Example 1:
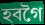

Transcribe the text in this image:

হবগৈ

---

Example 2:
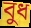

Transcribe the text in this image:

বুধ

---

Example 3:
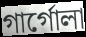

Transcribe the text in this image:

গাৰ্গোলা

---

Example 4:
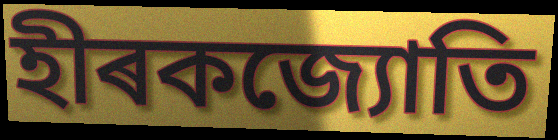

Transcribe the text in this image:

হীৰকজ্যোতি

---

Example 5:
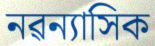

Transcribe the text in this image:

নৱন্যাসিক